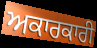
ਅਕਾਰਕਾਰੀ